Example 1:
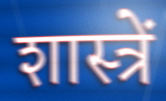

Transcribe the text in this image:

शास्त्रें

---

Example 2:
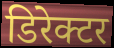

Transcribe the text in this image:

डिरेक्टर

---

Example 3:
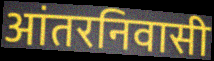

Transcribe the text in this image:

आंतरनिवासी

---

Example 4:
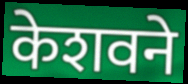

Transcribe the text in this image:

केशवने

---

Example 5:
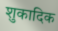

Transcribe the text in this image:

शुकादिक